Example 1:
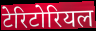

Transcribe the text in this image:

टेरिटोरियल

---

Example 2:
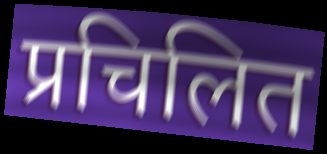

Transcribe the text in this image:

प्रचिलित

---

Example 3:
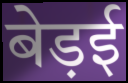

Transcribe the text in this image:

बेड़ई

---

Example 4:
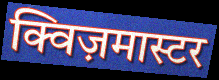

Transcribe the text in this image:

क्विज़मास्टर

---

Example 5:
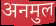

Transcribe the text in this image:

अनमुल